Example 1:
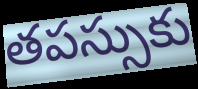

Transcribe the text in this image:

తపస్సుకు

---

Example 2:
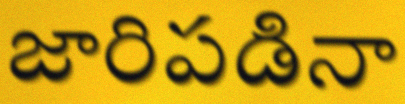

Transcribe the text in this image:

జారిపడినా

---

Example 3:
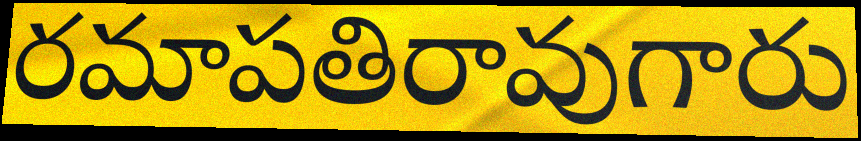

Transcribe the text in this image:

రమాపతిరావుగారు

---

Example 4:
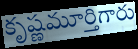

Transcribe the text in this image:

కృష్ణమూర్తిగారు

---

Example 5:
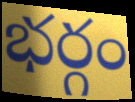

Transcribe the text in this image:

భర్గం